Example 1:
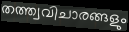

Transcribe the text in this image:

തത്ത്വവിചാരങ്ങളും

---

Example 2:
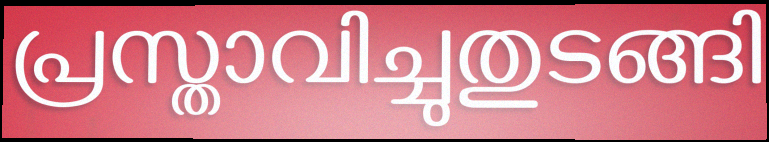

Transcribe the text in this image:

പ്രസ്താവിച്ചുതുടങ്ങി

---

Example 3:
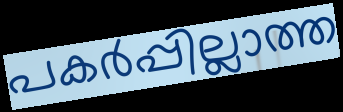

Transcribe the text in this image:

പകർപ്പില്ലാത്ത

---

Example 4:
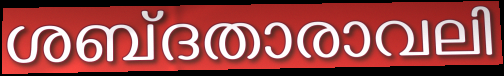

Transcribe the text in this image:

ശബ്‌ദതാരാവലി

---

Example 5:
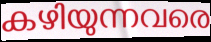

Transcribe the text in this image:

കഴിയുന്നവരെ